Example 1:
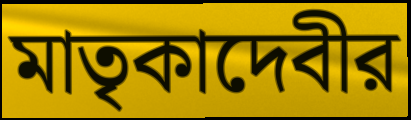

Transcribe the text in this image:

মাতৃকাদেবীর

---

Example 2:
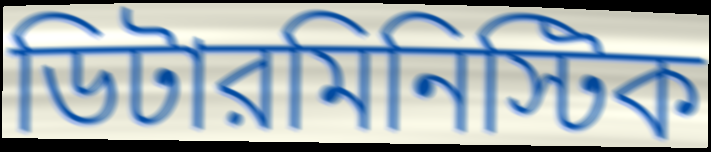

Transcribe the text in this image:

ডিটারমিনিস্টিক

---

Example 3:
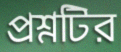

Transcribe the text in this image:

প্রশ্নটির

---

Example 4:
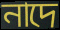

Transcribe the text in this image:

নাদে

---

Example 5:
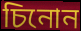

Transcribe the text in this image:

চিনোন